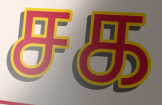
சக